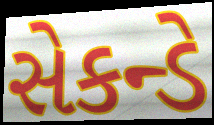
સેકન્ડે